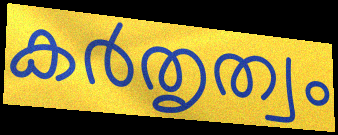
കർതൃത്വം